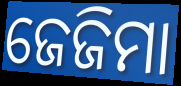
ଜେଜିମା